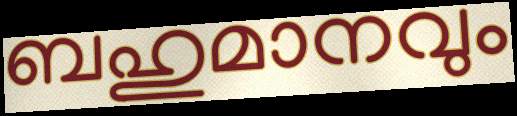
ബഹുമാനവും